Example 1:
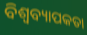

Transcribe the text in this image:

ବିଶ୍ୱବ୍ୟାପକତା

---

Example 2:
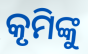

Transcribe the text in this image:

କୃମିଙ୍କୁ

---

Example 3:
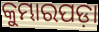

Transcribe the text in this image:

କୁମ୍ଭାରପଡ଼ା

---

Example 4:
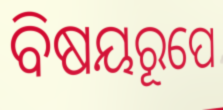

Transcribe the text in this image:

ବିଷୟରୂପେ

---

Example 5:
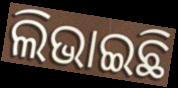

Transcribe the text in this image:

ଲିଭାଇଛି